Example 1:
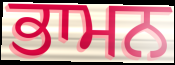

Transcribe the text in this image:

ਭਾਮਨ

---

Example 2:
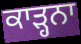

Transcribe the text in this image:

ਕਾੜ੍ਹਨਾ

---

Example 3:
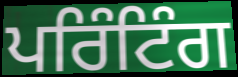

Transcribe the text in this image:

ਪਰਿੰਟਿੰਗ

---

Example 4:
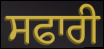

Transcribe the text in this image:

ਸਫਾਰੀ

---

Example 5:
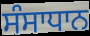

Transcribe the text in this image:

ਸੰਸਾਧਾਨ